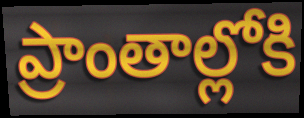
ప్రాంతాల్లోకి